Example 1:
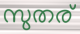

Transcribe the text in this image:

സുതര്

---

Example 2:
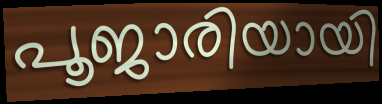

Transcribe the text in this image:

പൂജാരിയായി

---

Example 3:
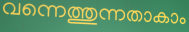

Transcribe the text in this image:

വന്നെത്തുന്നതാകാം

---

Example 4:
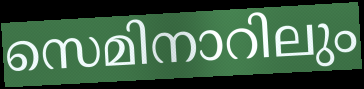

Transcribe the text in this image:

സെമിനാറിലും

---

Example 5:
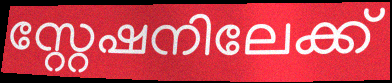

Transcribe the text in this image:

സ്റ്റേഷനിലേക്ക്